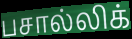
பசால்லிக்